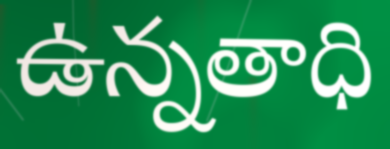
ఉన్నతాధి